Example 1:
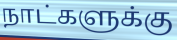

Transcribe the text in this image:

நாட்களுக்கு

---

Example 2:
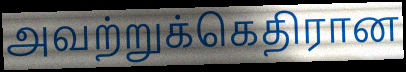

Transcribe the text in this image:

அவற்றுக்கெதிரான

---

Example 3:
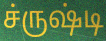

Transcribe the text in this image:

ச்ருஷ்டி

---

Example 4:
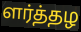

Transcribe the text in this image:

ளர்த்தழ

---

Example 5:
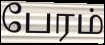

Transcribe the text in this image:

பேரம்